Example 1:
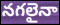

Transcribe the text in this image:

నగలైనా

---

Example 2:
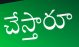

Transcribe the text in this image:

చేస్తారూ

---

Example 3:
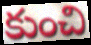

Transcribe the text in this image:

కుంచి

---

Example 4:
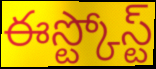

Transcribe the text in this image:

ఈస్ట్కోస్ట్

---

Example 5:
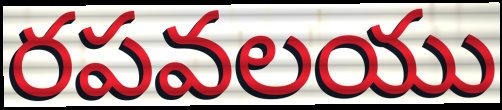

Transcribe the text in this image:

రపవలయు